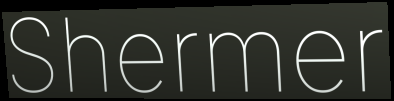
Shermer